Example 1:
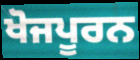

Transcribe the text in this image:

ਖੋਜਪੂਰਨ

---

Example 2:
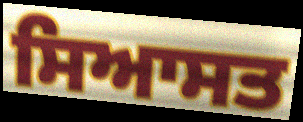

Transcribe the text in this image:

ਸਿਆਸਤ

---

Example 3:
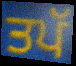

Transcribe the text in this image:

ਤਪੱ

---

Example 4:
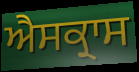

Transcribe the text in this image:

ਐਸਕ੍ਰਾਸ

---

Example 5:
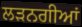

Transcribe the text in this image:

ਲੜਨਗੀਆਂ